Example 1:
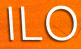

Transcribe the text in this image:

ILO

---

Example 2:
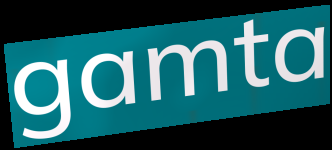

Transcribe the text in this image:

gamta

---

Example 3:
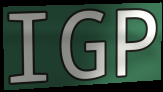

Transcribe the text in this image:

IGP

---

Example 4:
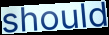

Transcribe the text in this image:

should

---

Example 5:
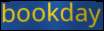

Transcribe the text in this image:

bookday